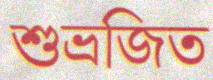
শুভ্রজিত